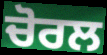
ਚੋਰਲ